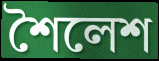
শৈলেশ